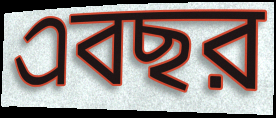
এবছর